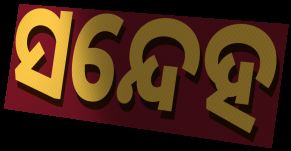
ସନ୍ଦେହ